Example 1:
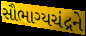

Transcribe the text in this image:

સૌભાગ્યચંદ્રને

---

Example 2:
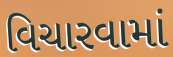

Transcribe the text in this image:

વિચારવામાં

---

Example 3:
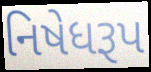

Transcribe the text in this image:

નિષેધરૂપ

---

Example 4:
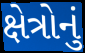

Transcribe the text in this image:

ક્ષેત્રોનું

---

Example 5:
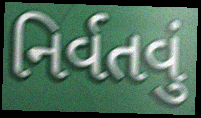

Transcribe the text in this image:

નિર્વતવું